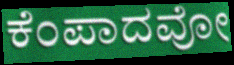
ಕೆಂಪಾದವೋ